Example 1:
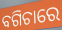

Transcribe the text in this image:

ବଗିଚାରେ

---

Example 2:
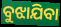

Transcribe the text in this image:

ବୁଝାଯିବା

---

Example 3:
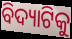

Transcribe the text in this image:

ବିଦ୍ୟାଟିକୁ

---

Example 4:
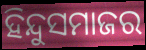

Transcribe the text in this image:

ହିନ୍ଦୁସମାଜର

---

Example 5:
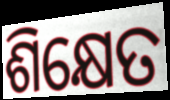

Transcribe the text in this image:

ଶିକ୍ଷେତ